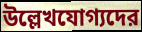
উল্লেখযোগ্যদের